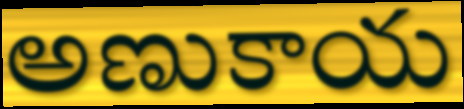
అణుకాయ